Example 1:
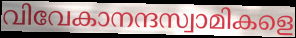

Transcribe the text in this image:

വിവേകാനന്ദസ്വാമികളെ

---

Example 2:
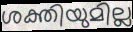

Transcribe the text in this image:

ശക്തിയുമില്ല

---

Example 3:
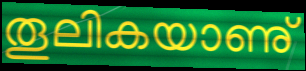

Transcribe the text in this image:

തൂലികയാണു്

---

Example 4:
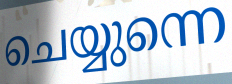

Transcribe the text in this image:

ചെയ്യുന്നെ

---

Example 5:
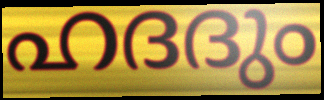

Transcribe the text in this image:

ഹദദും